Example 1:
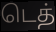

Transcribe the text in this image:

டெத்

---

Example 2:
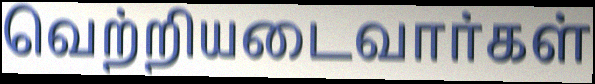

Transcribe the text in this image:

வெற்றியடைவார்கள்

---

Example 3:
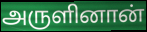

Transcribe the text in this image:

அருளினான்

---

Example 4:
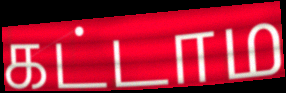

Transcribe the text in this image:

கட்டாம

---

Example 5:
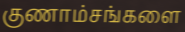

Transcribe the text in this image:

குணாம்சங்களை